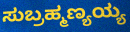
ಸುಬ್ರಹ್ಮಣ್ಯಯ್ಯ